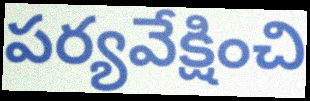
పర్యవేక్షించి